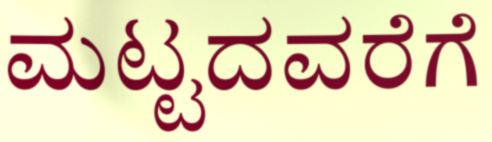
ಮಟ್ಟದವರೆಗೆ